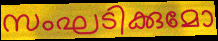
സംഘടിക്കുമോ